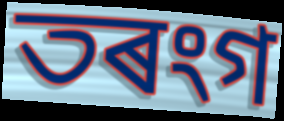
তৰংগ